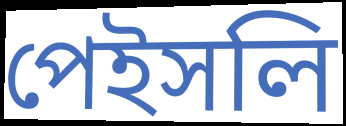
পেইসলি